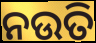
ନଉତି